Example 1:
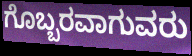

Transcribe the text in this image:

ಗೊಬ್ಬರವಾಗುವರು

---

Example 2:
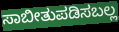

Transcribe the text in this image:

ಸಾಬೀತುಪಡಿಸಬಲ್ಲ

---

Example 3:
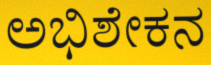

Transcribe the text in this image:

ಅಭಿಶೇಕನ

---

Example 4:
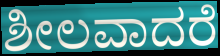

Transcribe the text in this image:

ಶೀಲವಾದರೆ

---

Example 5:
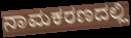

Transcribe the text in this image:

ನಾಮಕರಣದಲ್ಲಿ